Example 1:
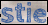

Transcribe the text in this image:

stie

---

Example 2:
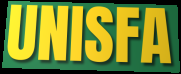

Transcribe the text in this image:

UNISFA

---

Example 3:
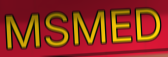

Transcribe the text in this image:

MSMED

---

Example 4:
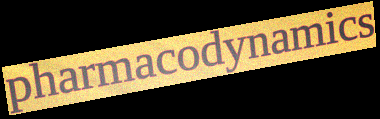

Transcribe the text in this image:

pharmacodynamics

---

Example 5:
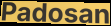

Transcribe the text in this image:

Padosan